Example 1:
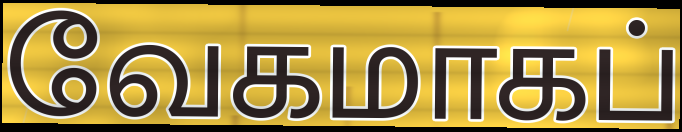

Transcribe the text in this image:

வேகமாகப்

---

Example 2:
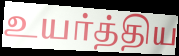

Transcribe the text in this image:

உயர்த்திய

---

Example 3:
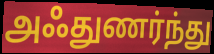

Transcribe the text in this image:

அஃதுணர்ந்து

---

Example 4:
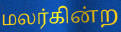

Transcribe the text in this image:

மலர்கின்ற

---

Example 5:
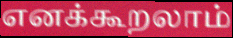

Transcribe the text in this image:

எனக்கூறலாம்